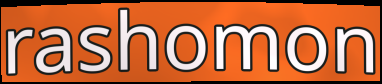
rashomon